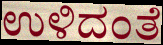
ಉಳಿದಂತೆ